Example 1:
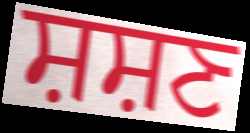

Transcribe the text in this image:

ਸ਼ਸ਼ਣ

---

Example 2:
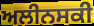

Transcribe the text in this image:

ਅਲੀਨਸਕੀ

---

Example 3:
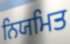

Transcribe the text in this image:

ਨਿਯਮਿਤ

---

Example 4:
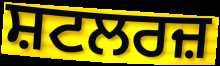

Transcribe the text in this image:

ਸ਼ਟਲਰਜ਼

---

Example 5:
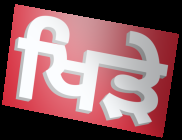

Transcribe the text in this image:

ਖਿੜੇ